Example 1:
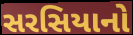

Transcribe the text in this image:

સરસિયાનો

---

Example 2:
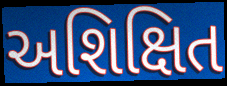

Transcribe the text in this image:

અશિક્ષિત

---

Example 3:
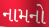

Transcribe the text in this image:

નામનો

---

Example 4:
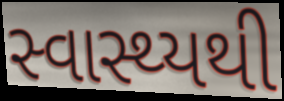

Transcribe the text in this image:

સ્વાસ્થ્યથી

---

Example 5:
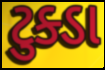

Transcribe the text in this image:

ટુક્ડા